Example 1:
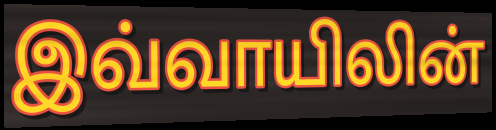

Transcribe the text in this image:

இவ்வாயிலின்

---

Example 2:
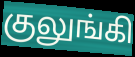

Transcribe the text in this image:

குலுங்கி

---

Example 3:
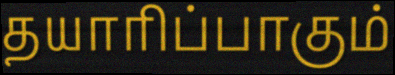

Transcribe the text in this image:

தயாரிப்பாகும்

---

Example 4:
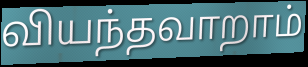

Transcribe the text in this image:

வியந்தவாறாம்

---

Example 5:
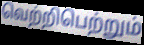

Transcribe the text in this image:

வெற்றிபெற்றும்